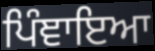
ਪਿੰਞਾਇਆ